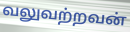
வலுவற்றவன்